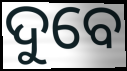
ଦୁବେ